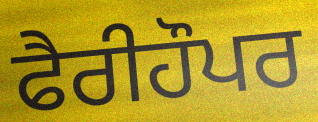
ਫੈਰੀਹੌਪਰ